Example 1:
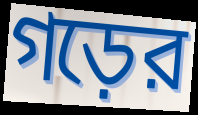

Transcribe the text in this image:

গড়ের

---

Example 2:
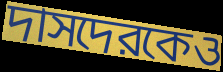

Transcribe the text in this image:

দাসদেরকেও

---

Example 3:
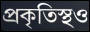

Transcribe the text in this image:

প্রকৃতিস্থও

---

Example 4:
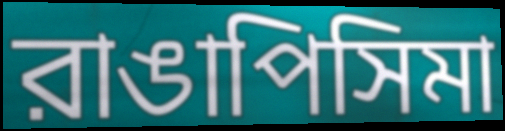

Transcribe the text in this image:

রাঙাপিসিমা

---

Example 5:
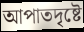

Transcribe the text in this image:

আপাতদৃষ্টে